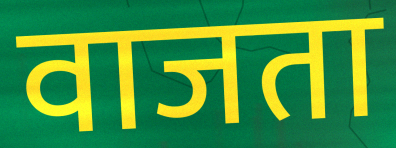
वाजता